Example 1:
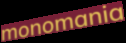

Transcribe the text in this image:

monomania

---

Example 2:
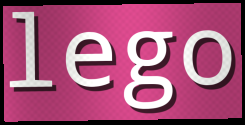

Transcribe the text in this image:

lego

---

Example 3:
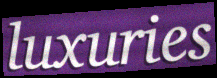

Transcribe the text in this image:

luxuries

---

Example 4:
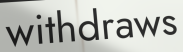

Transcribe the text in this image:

withdraws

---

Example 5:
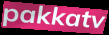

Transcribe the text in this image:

pakkatv